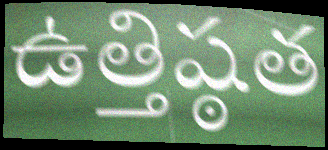
ఉత్తిష్ఠత